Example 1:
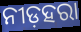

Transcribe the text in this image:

ନୀଡ଼ହରା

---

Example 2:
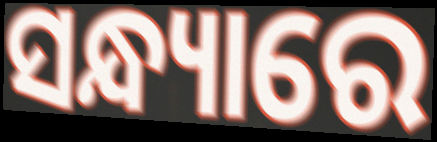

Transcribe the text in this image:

ସନ୍ଧ୍ୟାରେ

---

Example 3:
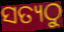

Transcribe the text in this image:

ସତ୍ୟଠୁ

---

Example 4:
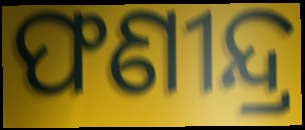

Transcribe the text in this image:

ଫଣୀନ୍ଦ୍ର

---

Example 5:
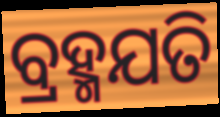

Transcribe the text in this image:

ବ୍ରହ୍ମଯତି